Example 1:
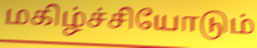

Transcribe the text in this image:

மகிழ்ச்சியோடும்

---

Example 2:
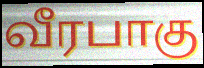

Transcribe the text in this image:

வீரபாகு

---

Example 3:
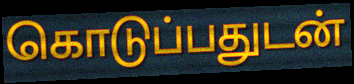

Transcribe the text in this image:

கொடுப்பதுடன்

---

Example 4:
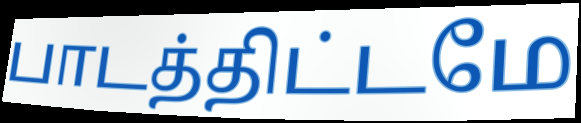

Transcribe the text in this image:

பாடத்திட்டமே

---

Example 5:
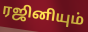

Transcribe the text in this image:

ரஜினியும்